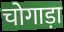
चोगाड़ा